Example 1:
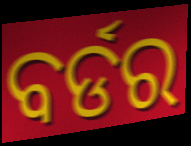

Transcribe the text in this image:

ବର୍ଡର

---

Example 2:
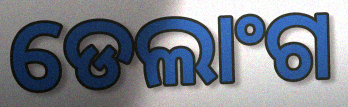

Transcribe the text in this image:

ଡେଲାଂଗ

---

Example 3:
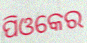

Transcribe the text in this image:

ପିଓକେର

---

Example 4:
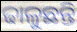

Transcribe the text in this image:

ଢାଳୁଛନ୍ତି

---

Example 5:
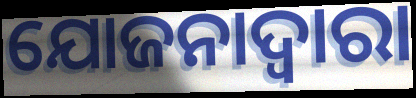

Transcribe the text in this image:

ଯୋଜନାଦ୍ବାରା